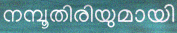
നമ്പൂതിരിയുമായി